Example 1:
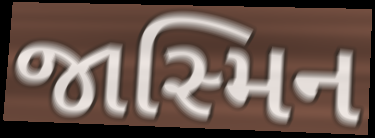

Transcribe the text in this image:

જાસ્મિન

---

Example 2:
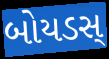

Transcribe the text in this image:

બોયડસ્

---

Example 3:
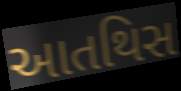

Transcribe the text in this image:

આતથિસ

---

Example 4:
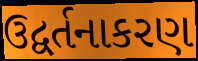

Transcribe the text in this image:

ઉદ્વર્તનાકરણ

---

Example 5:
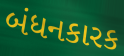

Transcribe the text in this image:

બંધનકારક